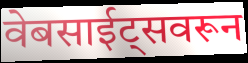
वेबसाईट्सवरून